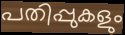
പതിപ്പുകളും